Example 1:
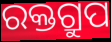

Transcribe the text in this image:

ରକ୍ତଗ୍ରୁପ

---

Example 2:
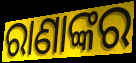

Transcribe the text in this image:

ରାଣାଙ୍କର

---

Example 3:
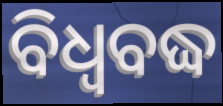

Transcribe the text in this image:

ବିଧ୍ଵବଦ୍ଧ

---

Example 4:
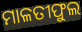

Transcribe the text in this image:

ମାଳତୀଫୁଲ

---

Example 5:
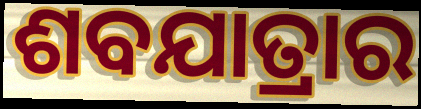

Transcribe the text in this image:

ଶବଯାତ୍ରାର